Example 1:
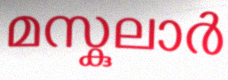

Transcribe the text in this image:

മസ്കുലാർ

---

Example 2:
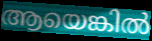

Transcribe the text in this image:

ആയെങ്കിൽ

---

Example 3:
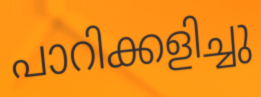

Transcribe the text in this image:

പാറിക്കളിച്ചു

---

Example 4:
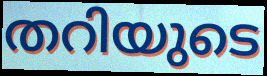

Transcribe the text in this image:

തറിയുടെ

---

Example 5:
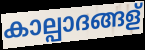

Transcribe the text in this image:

കാല്പാദങ്ങള്